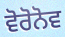
ਵੋਰੋਨੋਵ